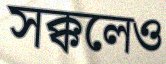
সক্কলেও